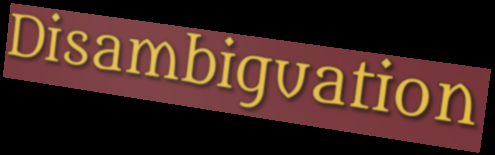
Disambiguation